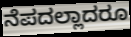
ನೆಪದಲ್ಲಾದರೂ